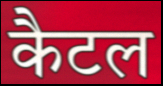
कैटल